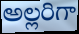
అల్లరిగా